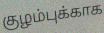
குழம்புக்காக